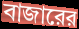
বাজারের